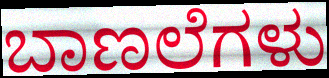
ಬಾಣಲೆಗಳು